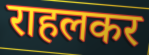
राहलकर